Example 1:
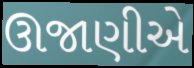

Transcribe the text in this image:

ઊજાણીએ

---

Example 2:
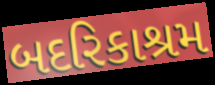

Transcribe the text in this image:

બદરિકાશ્રમ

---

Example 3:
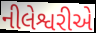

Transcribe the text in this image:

નીલેશ્વરીએ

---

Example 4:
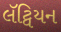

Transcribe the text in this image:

લૅટ્વિયન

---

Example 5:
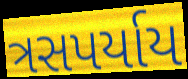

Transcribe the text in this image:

ત્રસપર્યાય